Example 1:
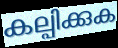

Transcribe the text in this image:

കല്പിക്കുക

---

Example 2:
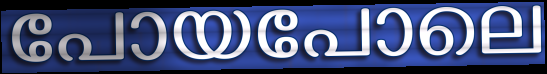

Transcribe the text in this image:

പോയപോലെ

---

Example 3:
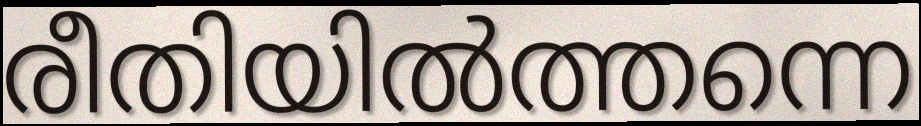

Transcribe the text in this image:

രീതിയിൽത്തന്നെ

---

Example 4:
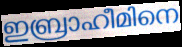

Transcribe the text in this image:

ഇബ്രാഹീമിനെ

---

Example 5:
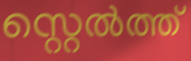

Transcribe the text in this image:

സ്റ്റെൽത്ത്